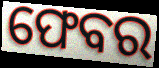
ଫେବର